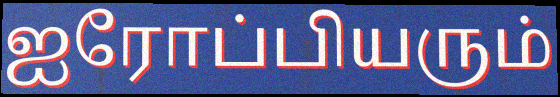
ஐரோப்பியரும்